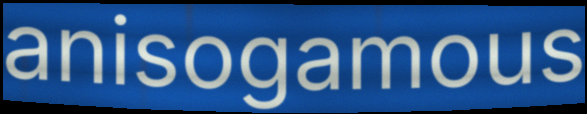
anisogamous